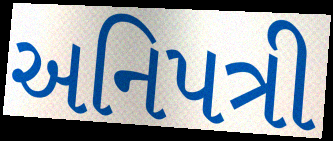
અનિપત્રી